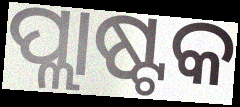
ପ୍ଲାଷ୍ଟକ